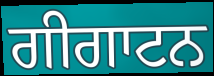
ਗੀਗਾਟਨ